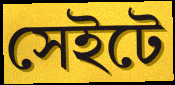
সেইটে